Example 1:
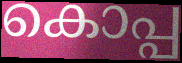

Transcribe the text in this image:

കൊപ്പ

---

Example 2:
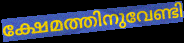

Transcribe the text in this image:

ക്ഷേമത്തിനുവേണ്ടി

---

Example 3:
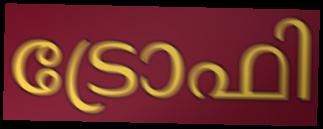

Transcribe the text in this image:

ട്രോഫി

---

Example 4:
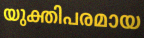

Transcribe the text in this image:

യുക്തിപരമായ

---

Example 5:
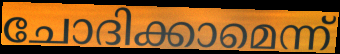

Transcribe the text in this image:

ചോദിക്കാമെന്ന്